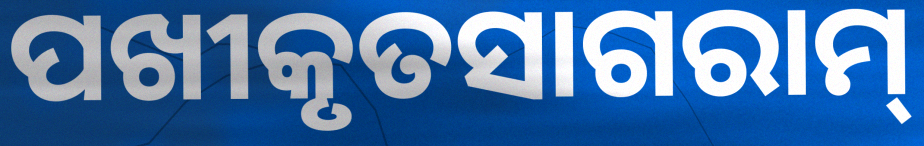
ପଖୀକୃତସାଗରାମ୍